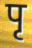
पृ